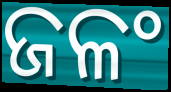
ଜଳଂ